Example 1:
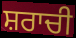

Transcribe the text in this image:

ਸ਼ਰਾਚੀ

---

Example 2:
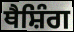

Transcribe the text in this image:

ਥੈਸ਼ਿੰਗ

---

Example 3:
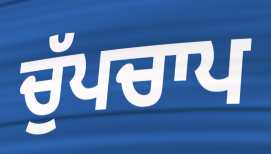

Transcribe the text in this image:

ਚੁੱਪਚਾਪ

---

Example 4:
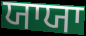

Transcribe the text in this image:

ਯਾਯਾ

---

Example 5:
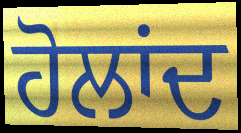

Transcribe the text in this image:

ਹੋਲਾਂਦ